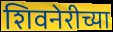
शिवनेरीच्या